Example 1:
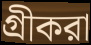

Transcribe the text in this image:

গ্রীকরা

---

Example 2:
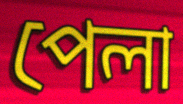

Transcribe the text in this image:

পেলা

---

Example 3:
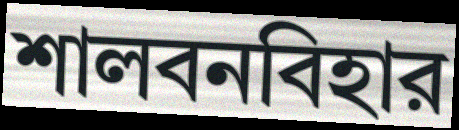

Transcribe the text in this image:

শালবনবিহার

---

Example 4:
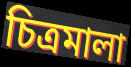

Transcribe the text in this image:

চিত্রমালা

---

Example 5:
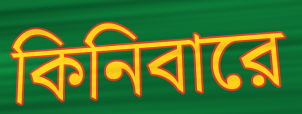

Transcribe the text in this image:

কিনিবারে